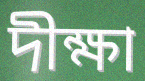
দীক্ষা